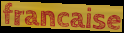
francaise